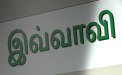
இவ்வாவி